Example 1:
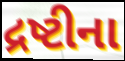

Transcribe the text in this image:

દ્રષ્ટીના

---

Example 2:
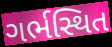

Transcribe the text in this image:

ગર્ભસ્થિત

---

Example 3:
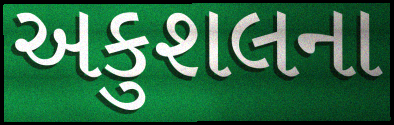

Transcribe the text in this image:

અકુશલના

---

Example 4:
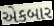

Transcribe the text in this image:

એકબાર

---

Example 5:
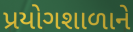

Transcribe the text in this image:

પ્રયોગશાળાને